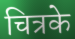
चित्रके